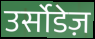
उर्सोडेज़